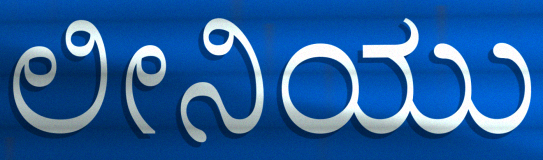
ಲೀನಿಯು